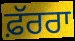
ਫ਼ੱਰਰਾ